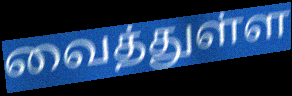
வைத்துள்ள